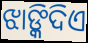
ଝାଙ୍କିଦିଏ